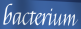
bacterium